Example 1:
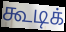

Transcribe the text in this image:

கூடிக்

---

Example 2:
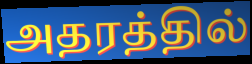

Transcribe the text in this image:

அதரத்தில்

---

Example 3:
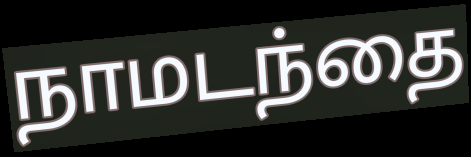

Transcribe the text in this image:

நாமடந்தை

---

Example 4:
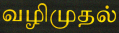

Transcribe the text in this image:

வழிமுதல்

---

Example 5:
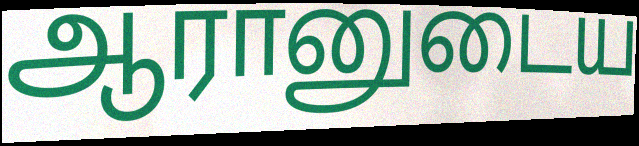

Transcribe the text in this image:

ஆரானுடைய